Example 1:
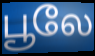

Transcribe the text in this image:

பூலே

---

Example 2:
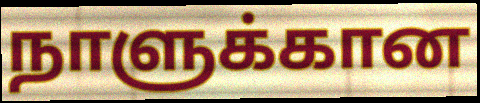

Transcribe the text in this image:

நாளுக்கான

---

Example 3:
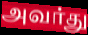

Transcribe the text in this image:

அவர்து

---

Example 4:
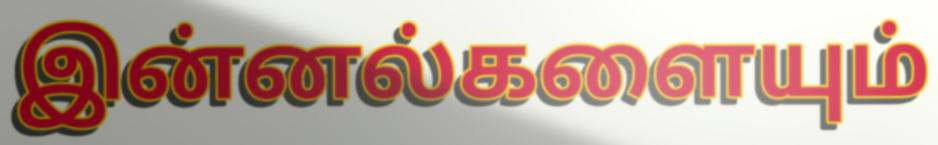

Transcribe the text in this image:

இன்னல்களையும்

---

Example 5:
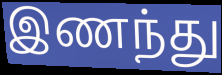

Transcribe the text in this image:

இணந்து